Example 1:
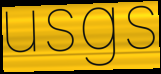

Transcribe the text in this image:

usgs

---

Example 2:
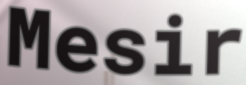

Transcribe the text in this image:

Mesir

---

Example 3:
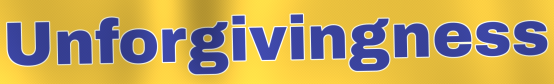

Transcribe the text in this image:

Unforgivingness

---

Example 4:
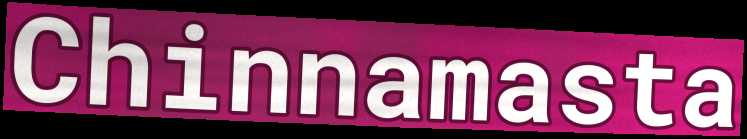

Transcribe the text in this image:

Chinnamasta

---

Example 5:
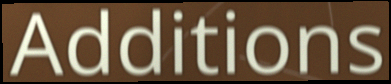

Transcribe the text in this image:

Additions